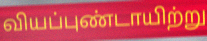
வியப்புண்டாயிற்று